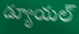
డ్యూయల్